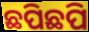
ଛପିଛପି